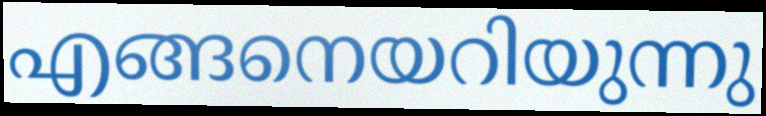
എങ്ങനെയറിയുന്നു